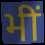
भीं